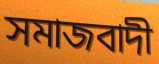
সমাজবাদী